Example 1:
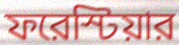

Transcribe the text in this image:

ফরেস্টিয়ার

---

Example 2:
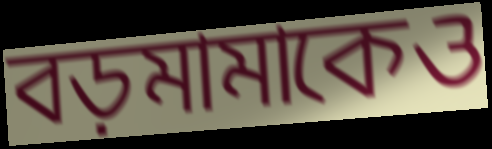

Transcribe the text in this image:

বড়মামাকেও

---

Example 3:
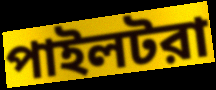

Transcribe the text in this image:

পাইলটরা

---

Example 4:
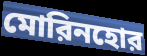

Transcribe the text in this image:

মোরিনহোর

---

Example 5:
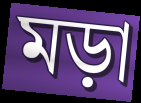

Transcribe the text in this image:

মড়া